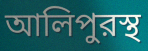
আলিপুরস্থ